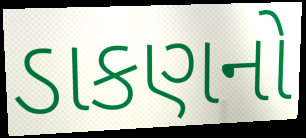
ડાકણનો